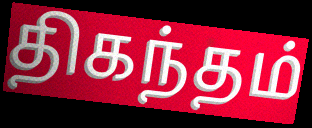
திகந்தம்